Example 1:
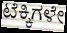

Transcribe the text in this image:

ಟೆಕ್ಕಿಗಳೇ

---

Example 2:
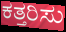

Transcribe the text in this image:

ಕತ್ತರಿಸು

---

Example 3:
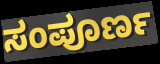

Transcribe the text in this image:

ಸಂಪೂರ್ಣ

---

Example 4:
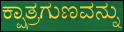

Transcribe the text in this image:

ಕ್ಷಾತ್ರಗುಣವನ್ನು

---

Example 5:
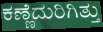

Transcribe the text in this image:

ಕಣ್ಣೆದುರಿಗಿತ್ತು